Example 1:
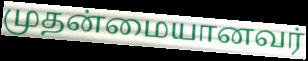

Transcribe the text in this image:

முதன்மையானவர்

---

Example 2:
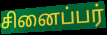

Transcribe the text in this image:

சினைப்பர்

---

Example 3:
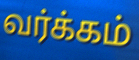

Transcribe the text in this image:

வர்க்கம்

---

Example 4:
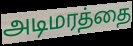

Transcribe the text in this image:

அடிமரத்தை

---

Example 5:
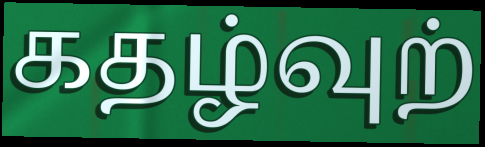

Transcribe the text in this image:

கதழ்வுற்